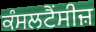
ਕੰਸਲਟੈਂਸੀਜ਼